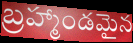
బ్రహ్మాండమైన